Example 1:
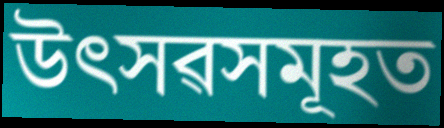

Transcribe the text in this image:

উৎসৱসমূহত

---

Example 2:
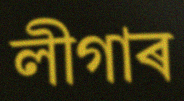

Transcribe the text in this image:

লীগাৰ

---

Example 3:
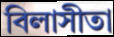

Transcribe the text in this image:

বিলাসীতা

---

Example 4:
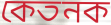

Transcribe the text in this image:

কেতনক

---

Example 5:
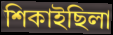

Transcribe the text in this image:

শিকাইছিলা